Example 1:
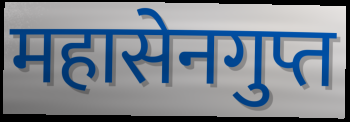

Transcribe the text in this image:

महासेनगुप्त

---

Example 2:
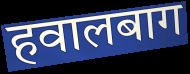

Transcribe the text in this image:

हवालबाग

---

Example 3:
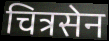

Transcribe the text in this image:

चित्रसेन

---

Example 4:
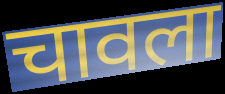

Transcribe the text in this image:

चावला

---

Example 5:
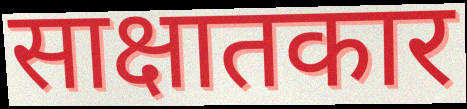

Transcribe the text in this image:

साक्षातकार